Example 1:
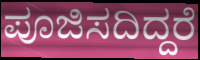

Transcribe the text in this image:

ಪೂಜಿಸದಿದ್ದರೆ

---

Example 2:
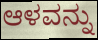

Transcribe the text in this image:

ಆಳವನ್ನು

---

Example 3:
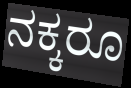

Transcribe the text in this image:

ನಕ್ಕರೂ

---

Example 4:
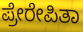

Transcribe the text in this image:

ಪ್ರೇರೇಪಿತಾ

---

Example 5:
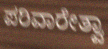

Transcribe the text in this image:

ಪರಿವಾರೇತ್ವಾ